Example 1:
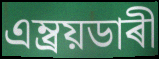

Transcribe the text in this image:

এম্ব্ৰয়ডাৰী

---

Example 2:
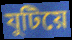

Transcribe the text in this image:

যুটিয়ে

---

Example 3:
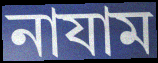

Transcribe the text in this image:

নাযাম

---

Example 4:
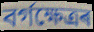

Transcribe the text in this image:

বৰ্গক্ষেত্ৰৰ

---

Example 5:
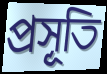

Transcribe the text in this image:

প্ৰসূতি